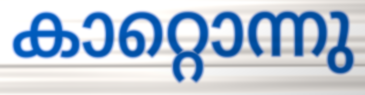
കാറ്റൊന്നു